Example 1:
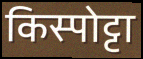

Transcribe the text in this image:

किस्पोट्टा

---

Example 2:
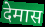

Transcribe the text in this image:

देमास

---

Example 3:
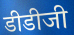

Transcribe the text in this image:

डीडीजी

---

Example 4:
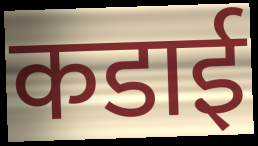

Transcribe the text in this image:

कडाई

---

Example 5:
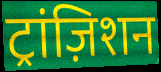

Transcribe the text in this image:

ट्रांज़िशन